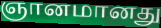
ஞானமானது